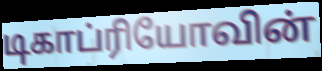
டிகாப்ரியோவின்